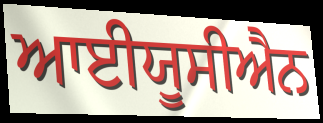
ਆਈਯੂਸੀਐਨ